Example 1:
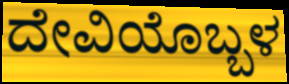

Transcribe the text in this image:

ದೇವಿಯೊಬ್ಬಳ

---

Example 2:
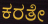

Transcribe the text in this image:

ಕರತೇ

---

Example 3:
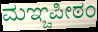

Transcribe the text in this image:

ಮಞ್ಚಪೀಠಂ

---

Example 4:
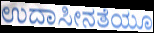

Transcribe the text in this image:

ಉದಾಸೀನತೆಯೂ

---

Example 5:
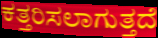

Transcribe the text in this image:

ಕತ್ತರಿಸಲಾಗುತ್ತದೆ